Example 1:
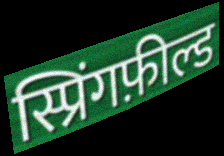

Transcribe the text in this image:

स्प्रिंगफ़ील्ड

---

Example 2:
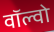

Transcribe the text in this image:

वॉल्वो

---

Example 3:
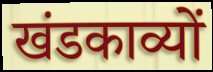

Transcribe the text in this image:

खंडकाव्यों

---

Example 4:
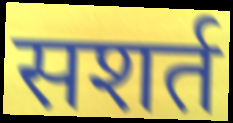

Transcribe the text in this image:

सशर्त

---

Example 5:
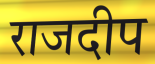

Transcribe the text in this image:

राजदीप